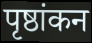
पृष्ठांकन